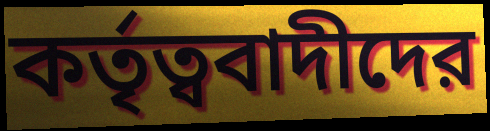
কর্তৃত্ববাদীদের